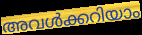
അവൾക്കറിയാം